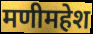
मणीमहेश